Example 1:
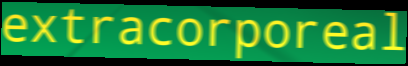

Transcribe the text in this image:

extracorporeal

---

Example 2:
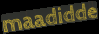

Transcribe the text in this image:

maadidde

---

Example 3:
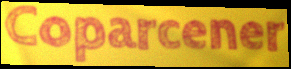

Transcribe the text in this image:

Coparcener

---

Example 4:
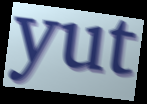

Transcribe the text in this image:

yut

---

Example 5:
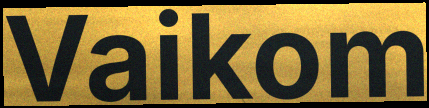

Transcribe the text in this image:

Vaikom